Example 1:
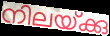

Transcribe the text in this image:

നിലയ്‌ക്കു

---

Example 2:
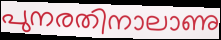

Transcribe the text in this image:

പുനരതിനാലാണു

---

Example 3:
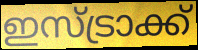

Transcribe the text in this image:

ഇസ്ട്രാക്ക്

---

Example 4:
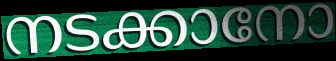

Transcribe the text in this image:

നടക്കാനോ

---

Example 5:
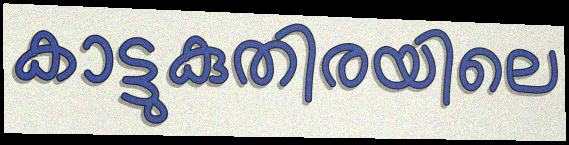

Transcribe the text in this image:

കാട്ടുകുതിരയിലെ